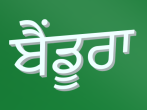
ਬੈਂਡੂਰਾ